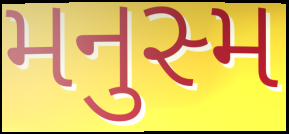
મનુસ્મ